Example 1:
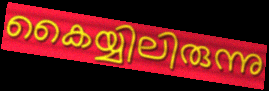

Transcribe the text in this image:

കൈയ്യിലിരുന്നു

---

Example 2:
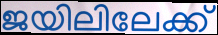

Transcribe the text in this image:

ജയിലിലേക്ക്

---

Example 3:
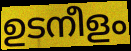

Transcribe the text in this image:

ഉടനീളം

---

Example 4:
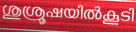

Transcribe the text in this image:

ശുശ്രൂഷയിൽകൂടി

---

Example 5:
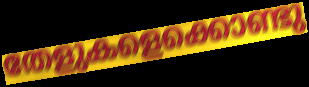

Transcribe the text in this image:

തേളുകളെക്കൊണ്ടു